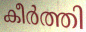
കീർത്തി